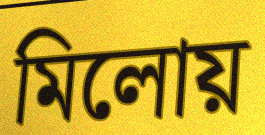
মিলোয়